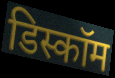
डिस्कॉम